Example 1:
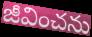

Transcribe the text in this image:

జీవించను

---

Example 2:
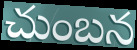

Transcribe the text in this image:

చుంబన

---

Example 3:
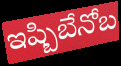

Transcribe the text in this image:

ఇష్బిబేనోబ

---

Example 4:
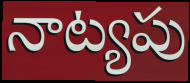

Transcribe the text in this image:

నాట్యపు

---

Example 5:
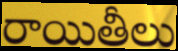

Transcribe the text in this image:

రాయితీలు